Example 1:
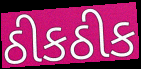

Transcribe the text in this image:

ઠીકઠીક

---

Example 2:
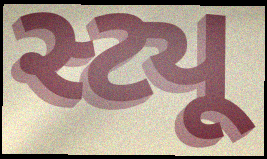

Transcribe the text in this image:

સ્ટ્યૂ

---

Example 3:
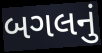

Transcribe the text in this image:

બગલનું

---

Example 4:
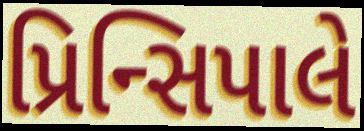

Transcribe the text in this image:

પ્રિન્સિપાલે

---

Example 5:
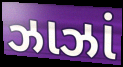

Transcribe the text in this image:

ઝાઝાં